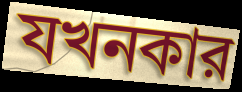
যখনকার